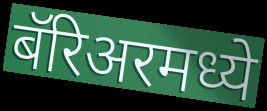
बॅरिअरमध्ये